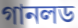
গানলড